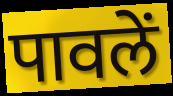
पावलें